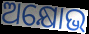
ଅକ୍ଷୋଭ